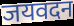
जयवदन